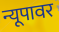
न्यूपावर